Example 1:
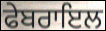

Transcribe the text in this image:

ਫੇਬਰਾਇਲ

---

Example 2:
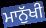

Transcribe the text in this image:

ਮਾਨੁੱਖੀ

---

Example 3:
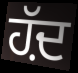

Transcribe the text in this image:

ਹ਼ੱਦ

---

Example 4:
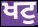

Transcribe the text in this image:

ਖਟੁ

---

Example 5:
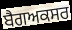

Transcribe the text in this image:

ਬੈਗਅਕਸਰ